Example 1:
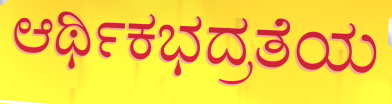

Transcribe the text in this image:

ಆರ್ಥಿಕಭದ್ರತೆಯ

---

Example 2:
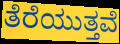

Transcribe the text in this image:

ತೆರೆಯುತ್ತವೆ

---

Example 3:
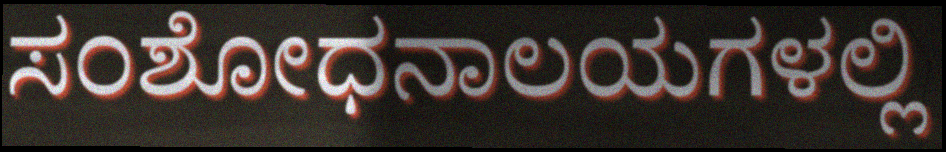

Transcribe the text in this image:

ಸಂಶೋಧನಾಲಯಗಳಲ್ಲಿ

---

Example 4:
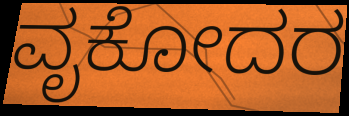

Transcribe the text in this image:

ವೃಕೋದರ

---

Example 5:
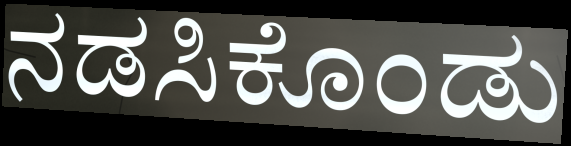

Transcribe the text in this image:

ನಡಸಿಕೊಂಡು